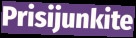
Prisijunkite